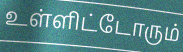
உள்ளிட்டோரும்